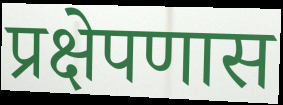
प्रक्षेपणास